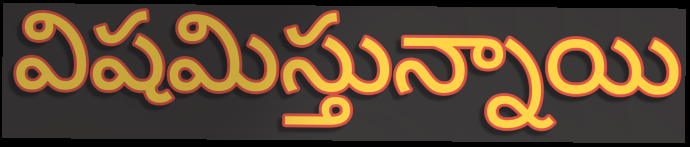
విషమిస్తున్నాయి